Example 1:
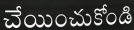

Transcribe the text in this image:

చేయించుకోండి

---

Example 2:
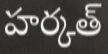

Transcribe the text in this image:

హర్కత్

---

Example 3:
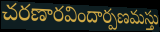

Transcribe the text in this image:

చరణారవిందార్పణమస్తు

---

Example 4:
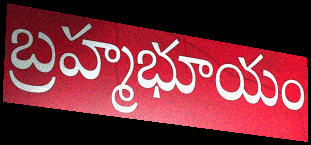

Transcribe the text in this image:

బ్రహ్మభూయం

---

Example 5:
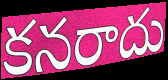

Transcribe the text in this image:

కనరాదు